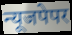
न्यूजपेपर